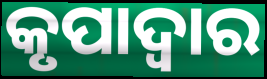
କୃପାଦ୍ଵାର